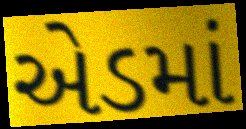
એડમાં